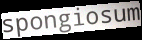
spongiosum